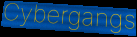
Cybergangs